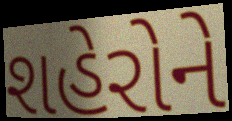
શહેરોને